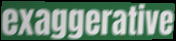
exaggerative